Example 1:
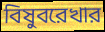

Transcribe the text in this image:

বিষুবরেখার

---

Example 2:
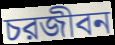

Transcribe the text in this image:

চরজীবন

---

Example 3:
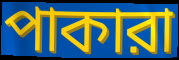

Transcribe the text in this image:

পাকারা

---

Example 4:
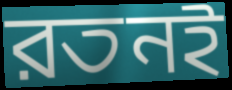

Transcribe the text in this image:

রতনই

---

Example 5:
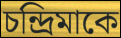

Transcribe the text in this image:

চন্দ্রিমাকে